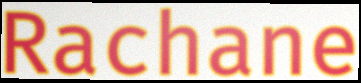
Rachane